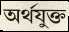
অৰ্থযুক্ত